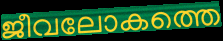
ജീവലോകത്തെ